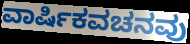
ವಾರ್ಷಿಕವಚನವು